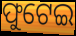
ଫୁଟେଇ